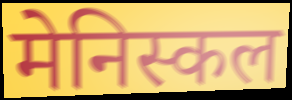
मेनिस्कल